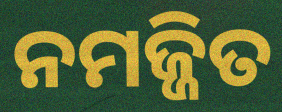
ନମଜ୍ଜିତ